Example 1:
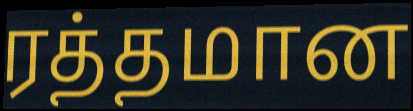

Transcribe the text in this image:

ரத்தமான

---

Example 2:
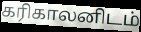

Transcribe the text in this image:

கரிகாலனிடம்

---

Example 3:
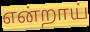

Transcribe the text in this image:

என்றாய்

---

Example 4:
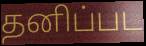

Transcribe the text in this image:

தனிப்பட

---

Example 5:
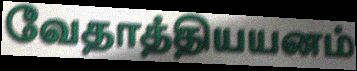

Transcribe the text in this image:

வேதாத்தியயனம்